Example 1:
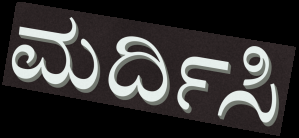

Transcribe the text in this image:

ಮರ್ದಿಸಿ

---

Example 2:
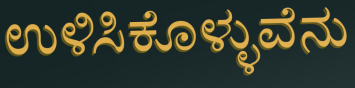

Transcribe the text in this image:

ಉಳಿಸಿಕೊಳ್ಳುವೆನು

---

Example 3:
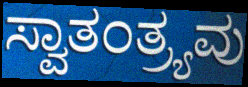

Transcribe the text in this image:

ಸ್ವಾತಂತ್ರ್ಯವು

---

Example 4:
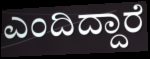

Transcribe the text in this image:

ಎಂದಿದ್ದಾರೆ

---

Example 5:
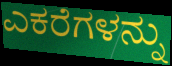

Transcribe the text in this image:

ಎಕರೆಗಳನ್ನು